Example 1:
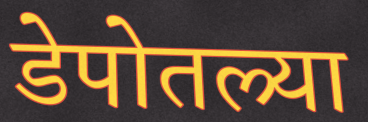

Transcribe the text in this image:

डेपोतल्या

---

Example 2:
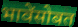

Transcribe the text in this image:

भावेंसोबत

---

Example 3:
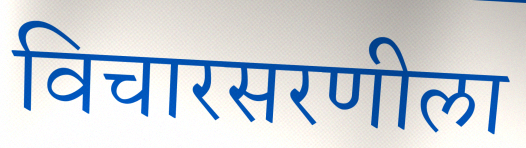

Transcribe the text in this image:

विचारसरणीला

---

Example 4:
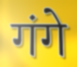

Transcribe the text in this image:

गंगे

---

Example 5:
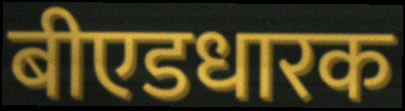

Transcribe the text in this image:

बीएडधारक